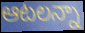
ఆటలన్నా